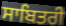
ਸਾਬਿਤਰੀ